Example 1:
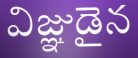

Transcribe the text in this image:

విజ్ఞుడైన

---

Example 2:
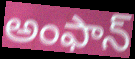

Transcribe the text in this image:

అంఫాన్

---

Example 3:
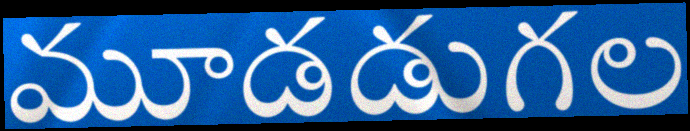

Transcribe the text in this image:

మూడడుగల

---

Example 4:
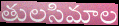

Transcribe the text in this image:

తులసిమాల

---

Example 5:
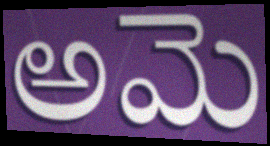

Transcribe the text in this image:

అమె